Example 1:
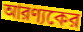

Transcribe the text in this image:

আরণ্যকের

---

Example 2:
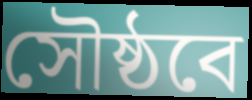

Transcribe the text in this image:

সৌষ্ঠবে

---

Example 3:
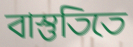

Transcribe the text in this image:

বাস্তুতিতে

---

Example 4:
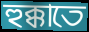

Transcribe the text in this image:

হুক্কাতে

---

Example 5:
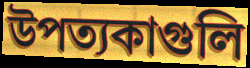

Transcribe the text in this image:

উপত্যকাগুলি